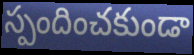
స్పందించకుండా